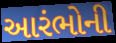
આરંભોની